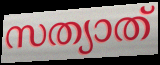
സത്യാത്